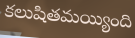
కలుషితమయ్యింది